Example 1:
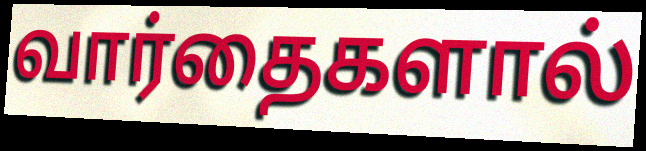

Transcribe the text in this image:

வார்தைகளால்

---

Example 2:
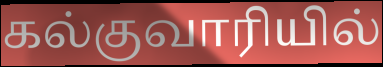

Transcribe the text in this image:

கல்குவாரியில்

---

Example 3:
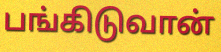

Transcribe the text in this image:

பங்கிடுவான்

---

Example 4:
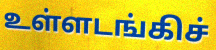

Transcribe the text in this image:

உள்ளடங்கிச்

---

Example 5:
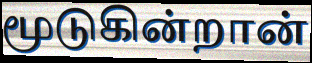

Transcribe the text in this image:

மூடுகின்றான்